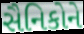
સૈનિકોને